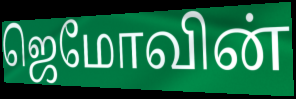
ஜெமோவின்